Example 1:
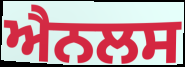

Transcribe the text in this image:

ਐਨਲਸ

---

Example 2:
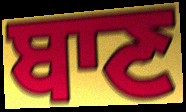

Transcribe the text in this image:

ਬਾਣ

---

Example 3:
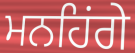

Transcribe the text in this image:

ਮਨਹਿਂਗੇ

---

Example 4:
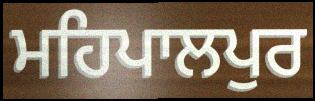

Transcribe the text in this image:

ਮਹਿਪਾਲਪੁਰ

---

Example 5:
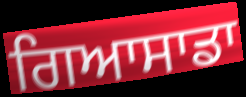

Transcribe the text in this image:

ਗਿਆਸਾਡਾ